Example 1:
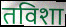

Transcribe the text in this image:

तविशा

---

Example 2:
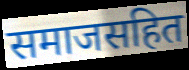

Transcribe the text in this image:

समाजसहित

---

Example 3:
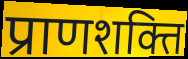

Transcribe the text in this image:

प्राणशक्ति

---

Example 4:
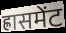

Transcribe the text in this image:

ह्रासमेंट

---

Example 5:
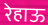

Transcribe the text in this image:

रेहाऊ